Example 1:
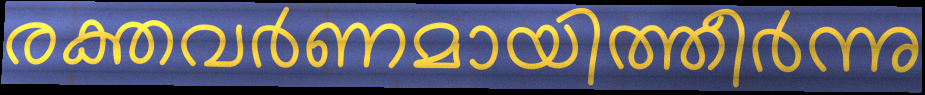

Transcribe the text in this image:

രക്തവർണമായിത്തീർന്നു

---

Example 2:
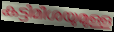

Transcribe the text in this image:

കട്ടിമീശയുമുള്ള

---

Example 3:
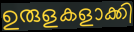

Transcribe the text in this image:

ഉരുളകളാക്കി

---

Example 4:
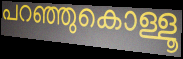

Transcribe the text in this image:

പറഞ്ഞുകൊള്ളൂ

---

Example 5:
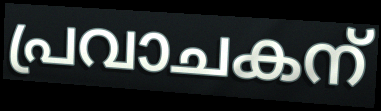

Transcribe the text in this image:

പ്രവാചകന്